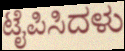
ಟೈಪಿಸಿದಳು